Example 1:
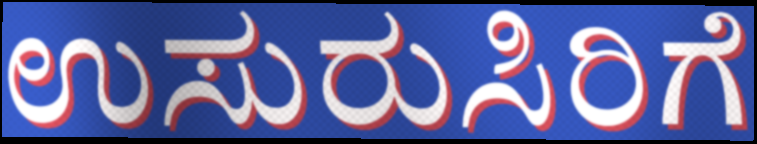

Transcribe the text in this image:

ಉಸುರುಸಿರಿಗೆ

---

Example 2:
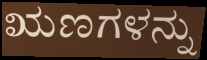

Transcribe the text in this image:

ಋಣಗಳನ್ನು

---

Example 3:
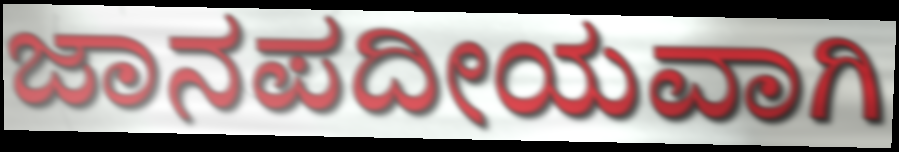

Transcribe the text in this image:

ಜಾನಪದೀಯವಾಗಿ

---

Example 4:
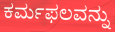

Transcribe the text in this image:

ಕರ್ಮಫಲವನ್ನು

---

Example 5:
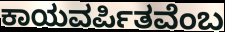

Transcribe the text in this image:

ಕಾಯವರ್ಪಿತವೆಂಬ